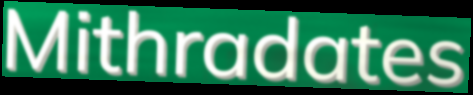
Mithradates